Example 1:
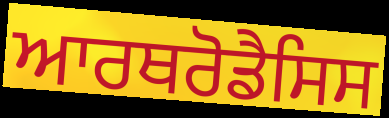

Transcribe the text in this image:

ਆਰਥਰੋਡੈਸਿਸ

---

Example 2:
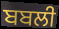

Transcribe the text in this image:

ਬਬਲੀ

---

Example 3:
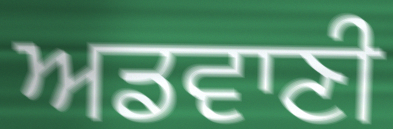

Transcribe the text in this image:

ਅਡਵਾਣੀ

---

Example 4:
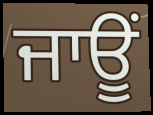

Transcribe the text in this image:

ਜਾਊਂ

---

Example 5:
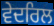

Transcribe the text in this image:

ਵੇਦਰਿਲ